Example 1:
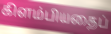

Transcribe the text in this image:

கிளம்பியதைப்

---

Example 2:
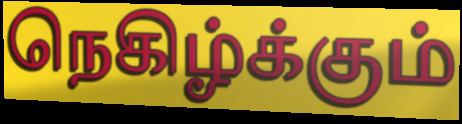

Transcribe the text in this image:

நெகிழ்க்கும்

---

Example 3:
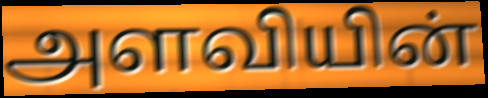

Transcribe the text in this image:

அளவியின்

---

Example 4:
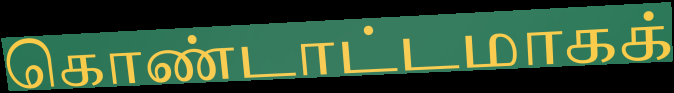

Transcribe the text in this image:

கொண்டாட்டமாகக்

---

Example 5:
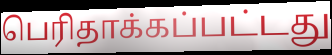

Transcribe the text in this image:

பெரிதாக்கப்பட்டது